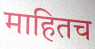
माहितच